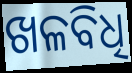
ଖଳବିଧି